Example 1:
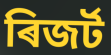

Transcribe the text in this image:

ৰিজৰ্ট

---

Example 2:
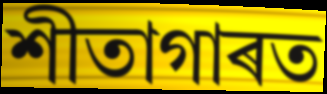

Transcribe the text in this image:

শীতাগাৰত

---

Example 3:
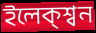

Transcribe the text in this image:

ইলেক্‌শ্বন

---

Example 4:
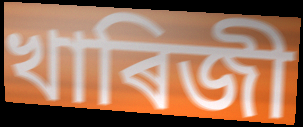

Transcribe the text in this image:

খাৰিজী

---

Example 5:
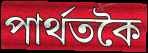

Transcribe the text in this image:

পাৰ্থতকৈ